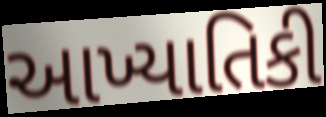
આખ્યાતિકી